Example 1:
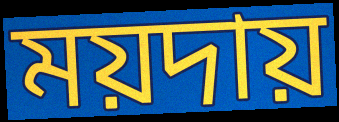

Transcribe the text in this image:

ময়দায়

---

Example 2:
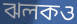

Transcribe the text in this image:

ঝলকও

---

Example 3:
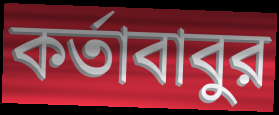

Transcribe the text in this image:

কর্তাবাবুর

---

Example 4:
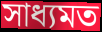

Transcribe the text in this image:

সাধ্যমত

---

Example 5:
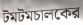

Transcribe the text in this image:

টমটমচালকের